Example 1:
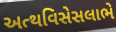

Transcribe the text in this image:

અત્થવિસેસલાભે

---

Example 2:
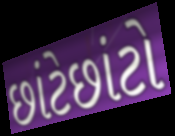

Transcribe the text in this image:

છાંટેછાંટો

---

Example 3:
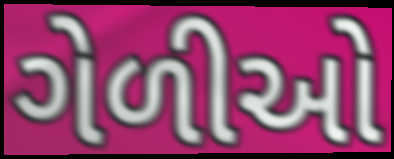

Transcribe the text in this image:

ગેળીઓ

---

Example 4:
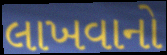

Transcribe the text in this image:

લાખવાનો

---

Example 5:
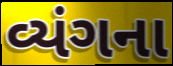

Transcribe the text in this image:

વ્યંગના